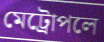
মেট্রোপলে